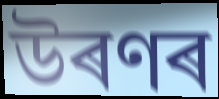
উৰণৰ